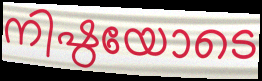
നിഷ്ഠയോടെ